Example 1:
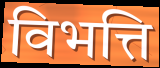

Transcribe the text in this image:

विभत्ति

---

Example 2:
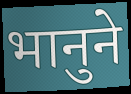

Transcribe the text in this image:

भानुने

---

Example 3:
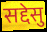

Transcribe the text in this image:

सद्देसु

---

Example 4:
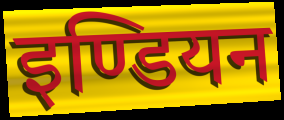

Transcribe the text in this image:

इण्डियन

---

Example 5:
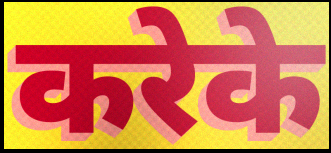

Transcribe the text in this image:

करेके